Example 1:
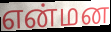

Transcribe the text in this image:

என்மன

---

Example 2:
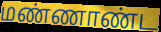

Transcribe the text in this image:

மண்ணாண்ட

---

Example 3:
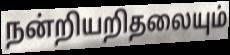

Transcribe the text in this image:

நன்றியறிதலையும்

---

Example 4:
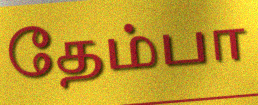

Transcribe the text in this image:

தேம்பா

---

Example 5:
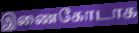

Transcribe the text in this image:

இணைகோடாக